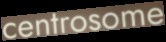
centrosome